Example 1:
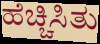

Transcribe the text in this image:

ಹೆಚ್ಚಿಸಿತು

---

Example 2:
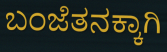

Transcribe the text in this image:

ಬಂಜೆತನಕ್ಕಾಗಿ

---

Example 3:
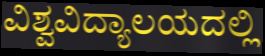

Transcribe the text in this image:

ವಿಶ್ವವಿದ್ಯಾಲಯದಲ್ಲಿ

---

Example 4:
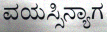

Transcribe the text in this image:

ವಯಸ್ಸಿನ್ಯಾಗ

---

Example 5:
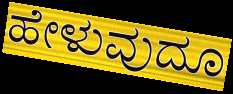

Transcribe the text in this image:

ಹೇಳುವುದೂ